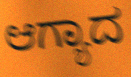
ಆಗ್ಯಾದ